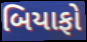
બિયાફો